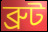
ব্রুট